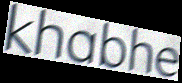
khabhe